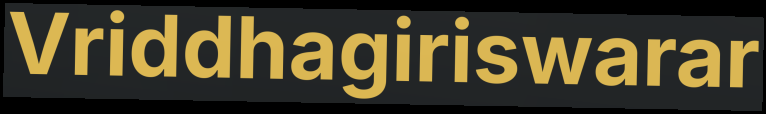
Vriddhagiriswarar